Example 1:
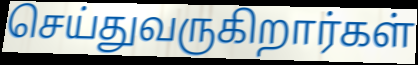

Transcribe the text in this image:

செய்துவருகிறார்கள்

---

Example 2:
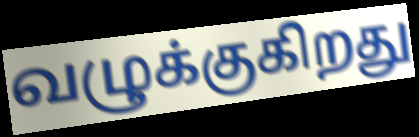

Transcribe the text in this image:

வழுக்குகிறது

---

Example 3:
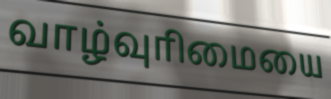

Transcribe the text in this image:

வாழ்வுரிமையை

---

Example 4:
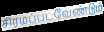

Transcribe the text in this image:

சிரமப்படவேண்டும்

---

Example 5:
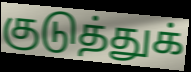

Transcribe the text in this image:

குடுத்துக்